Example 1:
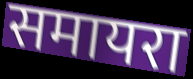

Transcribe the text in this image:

समायरा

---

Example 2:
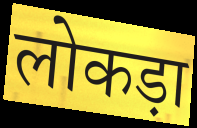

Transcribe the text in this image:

लोकड़ा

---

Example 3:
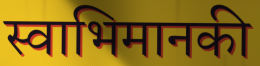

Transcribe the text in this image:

स्वाभिमानकी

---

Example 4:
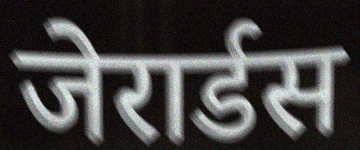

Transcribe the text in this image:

जेरार्डस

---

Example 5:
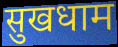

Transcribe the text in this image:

सुखधाम